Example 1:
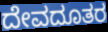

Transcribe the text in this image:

ದೇವದೂತರ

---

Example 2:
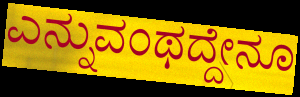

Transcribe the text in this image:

ಎನ್ನುವಂಥದ್ದೇನೂ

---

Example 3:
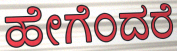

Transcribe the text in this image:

ಹೇಗೆಂದರೆ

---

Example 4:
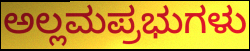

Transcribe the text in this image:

ಅಲ್ಲಮಪ್ರಭುಗಳು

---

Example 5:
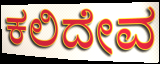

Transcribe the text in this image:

ಕಲಿದೇವ